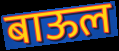
बाऊल